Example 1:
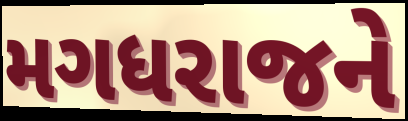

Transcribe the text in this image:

મગધરાજને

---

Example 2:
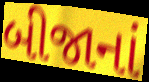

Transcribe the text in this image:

બીજાનાં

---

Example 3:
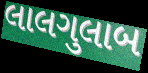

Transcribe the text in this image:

લાલગુલાબ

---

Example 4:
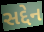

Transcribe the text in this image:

સદ્દેન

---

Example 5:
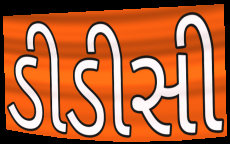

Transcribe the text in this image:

ડીડીસી